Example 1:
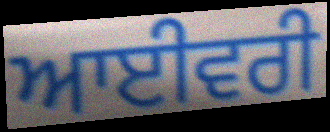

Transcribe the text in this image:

ਆਈਵਰੀ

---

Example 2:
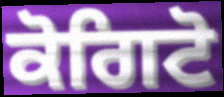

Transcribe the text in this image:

ਕੋਗਿਟੋ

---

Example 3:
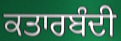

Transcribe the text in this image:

ਕਤਾਰਬੰਦੀ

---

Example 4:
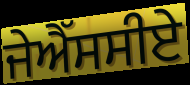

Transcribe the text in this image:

ਜੇਐੱਸਸੀਏ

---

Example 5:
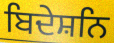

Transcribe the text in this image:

ਬਿਦੇਸ਼ਨਿ